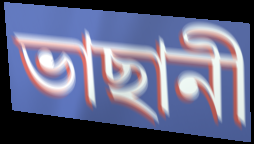
ভাছানী